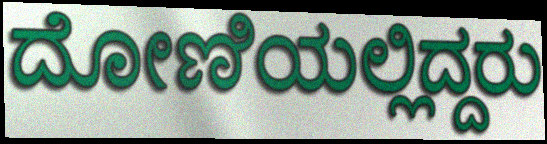
ದೋಣಿಯಲ್ಲಿದ್ದರು